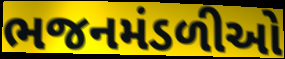
ભજનમંડળીઓ